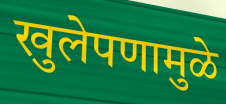
खुलेपणामुळे